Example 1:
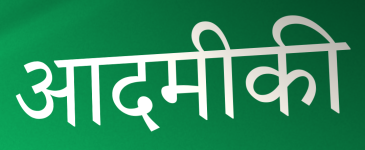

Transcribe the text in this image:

आदमीकी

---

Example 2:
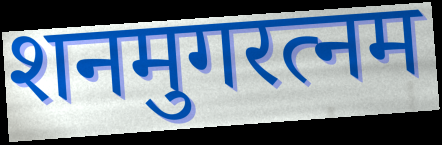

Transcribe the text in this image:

शनमुगरत्नम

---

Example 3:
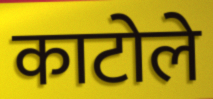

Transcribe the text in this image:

काटोले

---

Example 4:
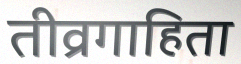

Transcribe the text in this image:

तीव्रगाहिता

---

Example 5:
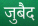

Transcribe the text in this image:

जुबैद